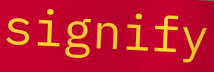
signify